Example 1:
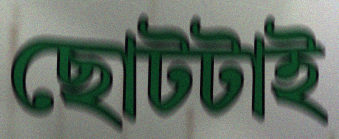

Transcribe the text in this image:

ছোটটাই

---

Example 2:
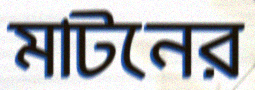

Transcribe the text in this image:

মাটনের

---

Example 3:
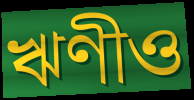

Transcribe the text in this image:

ঋণীও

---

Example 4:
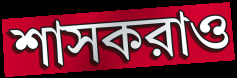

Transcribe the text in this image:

শাসকরাও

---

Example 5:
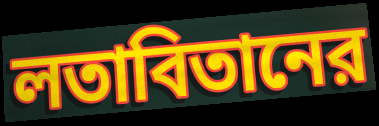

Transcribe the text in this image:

লতাবিতানের